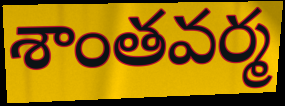
శాంతవర్మ